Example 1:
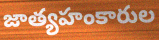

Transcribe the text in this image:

జాత్యహంకారుల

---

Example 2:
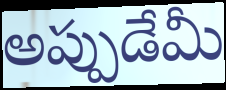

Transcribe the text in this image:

అప్పుడేమీ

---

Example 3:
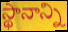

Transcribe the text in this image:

స్థానాన్ని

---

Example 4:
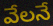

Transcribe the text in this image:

వేలనే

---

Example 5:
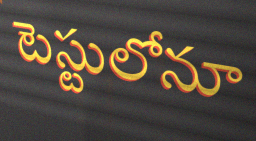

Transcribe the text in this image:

టెస్టులోనూ